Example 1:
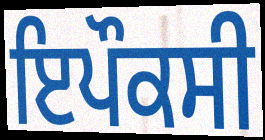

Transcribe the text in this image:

ਇਪੌਕਸੀ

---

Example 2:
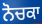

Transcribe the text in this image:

ਨੋਚਕਾ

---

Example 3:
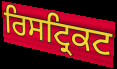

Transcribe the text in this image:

ਰਿਸਟ੍ਰਿਕਟ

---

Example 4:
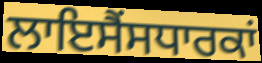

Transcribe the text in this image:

ਲਾਇਸੈਂਸਧਾਰਕਾਂ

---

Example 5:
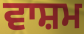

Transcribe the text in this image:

ਵਾਸ਼ਮ